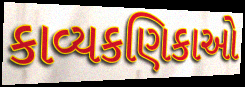
કાવ્યકણિકાઓ